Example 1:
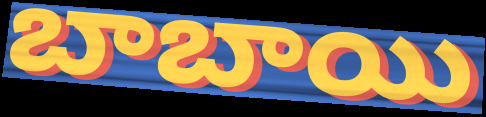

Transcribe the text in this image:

బాబాయి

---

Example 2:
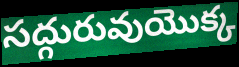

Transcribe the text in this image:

సద్గురువుయొక్క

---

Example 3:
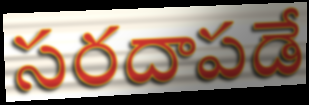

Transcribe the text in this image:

సరదాపడే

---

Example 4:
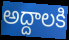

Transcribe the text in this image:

అద్దాలకి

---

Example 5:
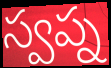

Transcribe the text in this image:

స్వప్న